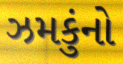
ઝમકુંનો